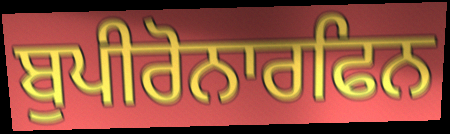
ਬੁਪੀਰੋਨਾਰਫਿਨ